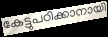
കേട്ടുപഠിക്കാനായി